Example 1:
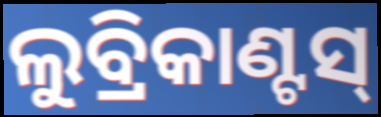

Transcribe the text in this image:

ଲୁବ୍ରିକାଣ୍ଟସ୍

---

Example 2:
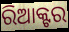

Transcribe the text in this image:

ରିଆକ୍ଟର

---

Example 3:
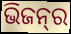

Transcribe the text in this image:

ଭିଜନ୍‌ର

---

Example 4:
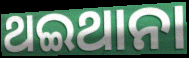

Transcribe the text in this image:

ଥଇଥାନା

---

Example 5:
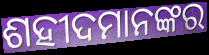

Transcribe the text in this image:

ଶହୀଦମାନଙ୍କର